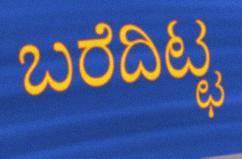
ಬರೆದಿಟ್ಟ